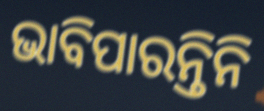
ଭାବିପାରନ୍ତିନି